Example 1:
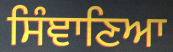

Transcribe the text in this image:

ਸਿੰਞਾਣਿਆ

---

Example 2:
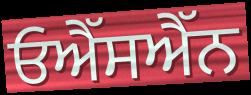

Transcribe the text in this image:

ਓਐੱਸਐੱਨ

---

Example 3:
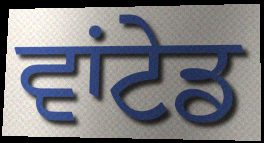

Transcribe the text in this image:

ਵਾਂਟੇਡ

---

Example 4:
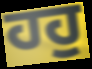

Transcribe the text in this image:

ਹਹੁ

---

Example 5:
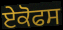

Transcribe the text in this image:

ਏਕੋਫਸ